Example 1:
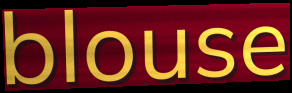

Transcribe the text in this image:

blouse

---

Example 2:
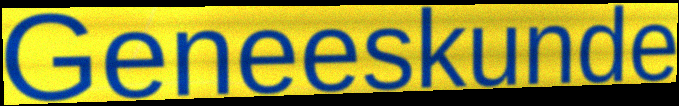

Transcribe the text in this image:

Geneeskunde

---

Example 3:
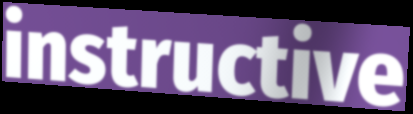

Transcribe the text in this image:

instructive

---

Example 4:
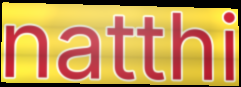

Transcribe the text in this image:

natthi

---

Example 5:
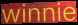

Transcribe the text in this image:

winnie